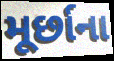
મૂર્છાના